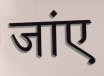
जांए